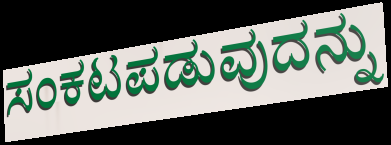
ಸಂಕಟಪಡುವುದನ್ನು